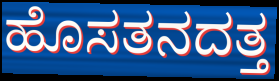
ಹೊಸತನದತ್ತ